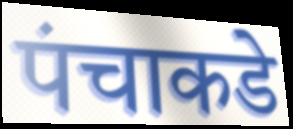
पंचाकडे